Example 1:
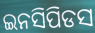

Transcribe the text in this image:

ଇନସିପିଡସ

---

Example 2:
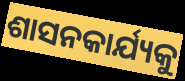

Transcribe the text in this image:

ଶାସନକାର୍ଯ୍ୟକୁ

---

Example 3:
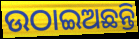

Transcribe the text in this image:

ଉଠାଇଅଛନ୍ତି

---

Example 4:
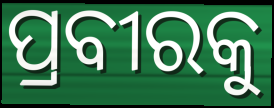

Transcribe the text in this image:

ପ୍ରବୀରକୁ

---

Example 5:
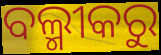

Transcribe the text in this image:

ବଲ୍ମୀକରୁ